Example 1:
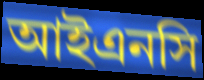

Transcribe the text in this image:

আইএনসি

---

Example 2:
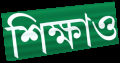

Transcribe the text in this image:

শিক্ষাও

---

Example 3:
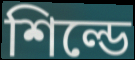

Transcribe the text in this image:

শিল্ডে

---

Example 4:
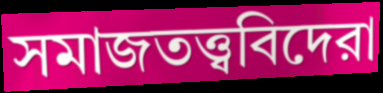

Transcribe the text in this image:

সমাজতত্ত্ববিদেরা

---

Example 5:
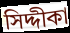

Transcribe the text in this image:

সিদ্দীকা